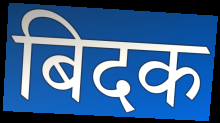
बिदक